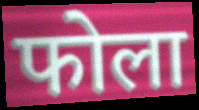
फोला